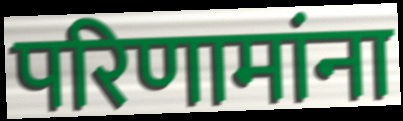
परिणामांना